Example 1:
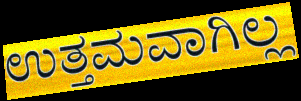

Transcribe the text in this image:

ಉತ್ತಮವಾಗಿಲ್ಲ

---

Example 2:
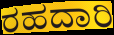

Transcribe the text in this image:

ರಹದಾರಿ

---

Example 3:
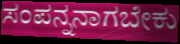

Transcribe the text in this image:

ಸಂಪನ್ನನಾಗಬೇಕು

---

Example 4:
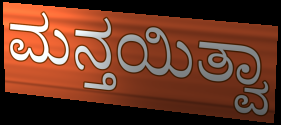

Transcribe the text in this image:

ಮನ್ತಯಿತ್ವಾ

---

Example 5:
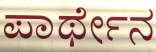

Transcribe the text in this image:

ಪಾರ್ಥೇನ